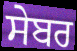
ਸੇਬਰ